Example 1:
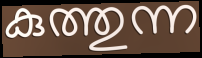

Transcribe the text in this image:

കുത്തുന്ന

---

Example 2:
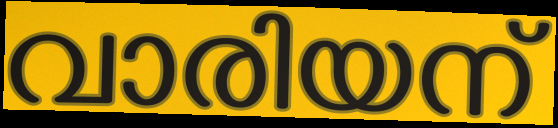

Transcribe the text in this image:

വാരിയന്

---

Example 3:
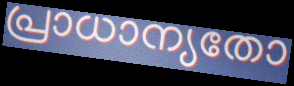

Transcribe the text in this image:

പ്രാധാന്യതോ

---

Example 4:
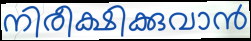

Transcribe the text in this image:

നിരീക്ഷിക്കുവാൻ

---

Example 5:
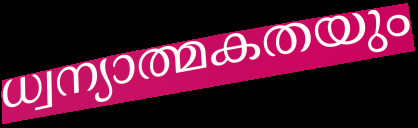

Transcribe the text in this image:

ധ്വന്യാത്മകതയും